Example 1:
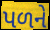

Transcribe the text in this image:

પળને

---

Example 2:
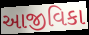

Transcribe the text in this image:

આજીવિકા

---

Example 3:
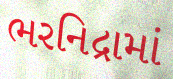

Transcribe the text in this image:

ભરનિદ્રામાં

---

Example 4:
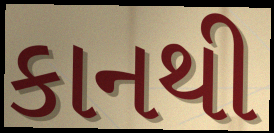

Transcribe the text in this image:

કાનથી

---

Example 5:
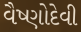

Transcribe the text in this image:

વૈષ્ણોદેવી